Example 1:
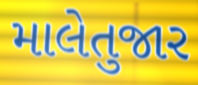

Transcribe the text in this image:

માલેતુજાર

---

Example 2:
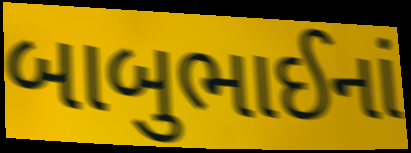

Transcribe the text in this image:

બાબુભાઈનાં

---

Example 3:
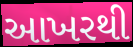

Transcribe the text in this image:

આખરથી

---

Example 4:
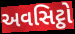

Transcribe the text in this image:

અવસિટ્ઠો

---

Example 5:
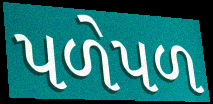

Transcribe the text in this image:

પળેપળ